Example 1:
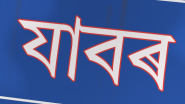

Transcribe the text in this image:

যাবৰ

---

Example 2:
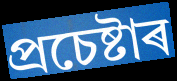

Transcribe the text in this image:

প্ৰচেষ্টাৰ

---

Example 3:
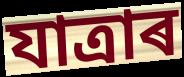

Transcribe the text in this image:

যাত্ৰাৰ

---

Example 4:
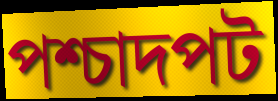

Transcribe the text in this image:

পশ্চাদপট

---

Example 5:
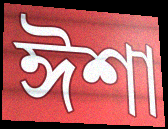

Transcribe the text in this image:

ঈশা